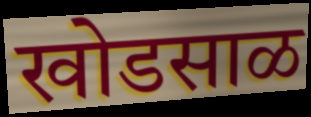
खोडसाळ